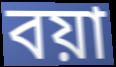
বয়া